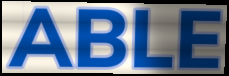
ABLE